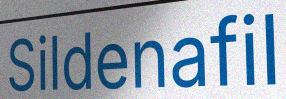
Sildenafil